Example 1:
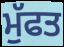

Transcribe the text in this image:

ਮੁੱਫਤ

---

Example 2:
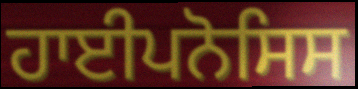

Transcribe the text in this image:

ਹਾਈਪਨੋਸਿਸ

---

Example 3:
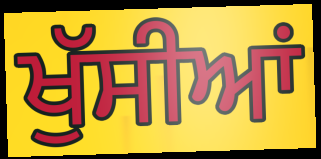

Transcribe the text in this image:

ਖੁੱਸੀਆਂ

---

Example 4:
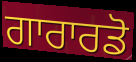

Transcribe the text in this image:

ਗਾਰਾਰਡੋ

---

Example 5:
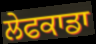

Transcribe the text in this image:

ਲੇਫਕਾਡਾ